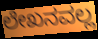
ಲೇಖನವಲ್ಲ